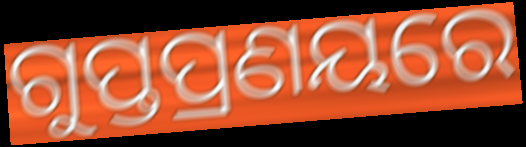
ଗୁପ୍ତପ୍ରଣୟରେ